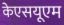
केएसयूएम